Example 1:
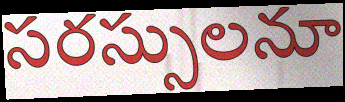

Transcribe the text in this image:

సరస్సులనూ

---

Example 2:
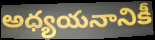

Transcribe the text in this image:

అధ్యయనానికీ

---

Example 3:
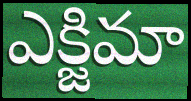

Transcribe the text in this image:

ఎక్జిమా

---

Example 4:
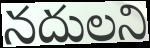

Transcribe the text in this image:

నదులని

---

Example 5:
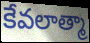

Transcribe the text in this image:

కేవలాత్మా